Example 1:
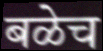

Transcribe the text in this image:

बळेच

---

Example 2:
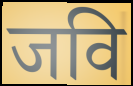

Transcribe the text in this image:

जवि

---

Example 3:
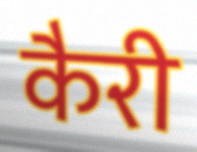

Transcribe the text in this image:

कैरी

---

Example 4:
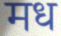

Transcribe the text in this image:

मध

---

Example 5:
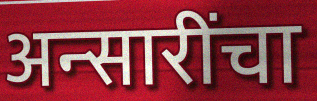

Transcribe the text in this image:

अन्सारींचा